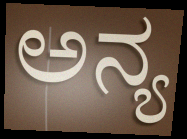
ಅನ್ಯ